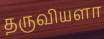
தருவியளா